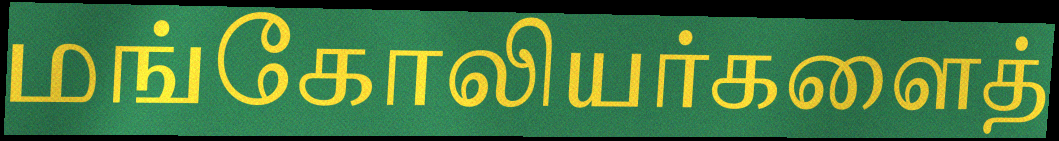
மங்கோலியர்களைத்